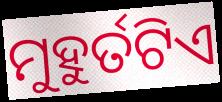
ମୁହୁର୍ତଟିଏ